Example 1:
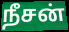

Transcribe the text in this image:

நீசன்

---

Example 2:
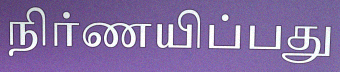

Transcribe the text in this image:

நிர்ணயிப்பது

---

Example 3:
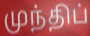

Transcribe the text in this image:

முந்திப்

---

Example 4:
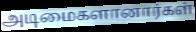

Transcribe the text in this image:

அடிமைகளானார்கள்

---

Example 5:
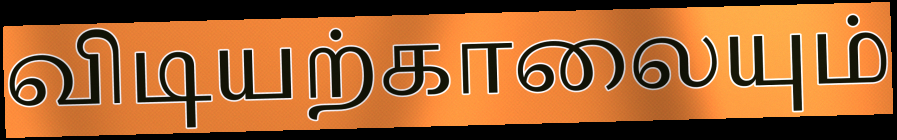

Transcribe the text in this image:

விடியற்காலையும்